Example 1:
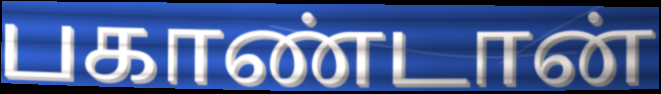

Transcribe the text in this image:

பகாண்டான்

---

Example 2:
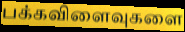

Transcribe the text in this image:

பக்கவிளைவுகளை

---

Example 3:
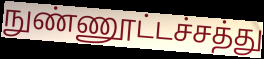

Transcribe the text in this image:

நுண்ணூட்டச்சத்து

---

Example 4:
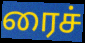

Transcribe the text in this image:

ரைச்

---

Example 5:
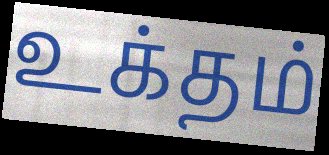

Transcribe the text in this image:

உக்தம்